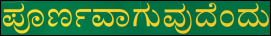
ಪೂರ್ಣವಾಗುವುದೆಂದು